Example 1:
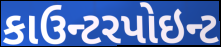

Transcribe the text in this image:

કાઉન્ટરપોઇન્ટ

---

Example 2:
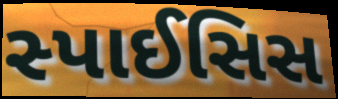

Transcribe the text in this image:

સ્પાઈસિસ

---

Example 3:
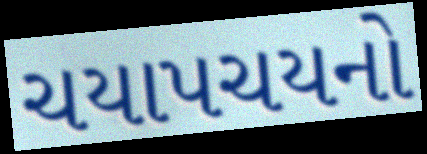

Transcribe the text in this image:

ચયાપચયનો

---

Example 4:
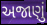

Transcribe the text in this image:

અજાણું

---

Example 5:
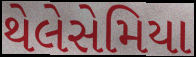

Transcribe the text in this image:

થેલેસેમિયા